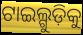
ଟାଇଲ୍ଗୁଡ଼ିକୁ